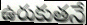
ఉరుకుతనే